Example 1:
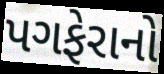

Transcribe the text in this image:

પગફેરાનો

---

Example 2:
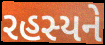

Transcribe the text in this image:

રહસ્યને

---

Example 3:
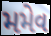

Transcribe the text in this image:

મમેવ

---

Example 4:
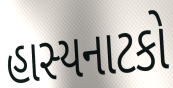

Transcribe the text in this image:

હાસ્યનાટકો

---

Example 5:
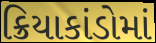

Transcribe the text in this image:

ક્રિયાકાંડોમાં